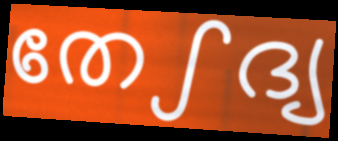
തേഽദ്യ